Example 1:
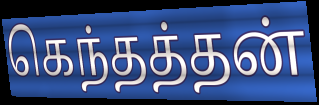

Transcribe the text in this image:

கெந்தத்தன்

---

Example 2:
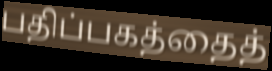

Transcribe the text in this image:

பதிப்பகத்தைத்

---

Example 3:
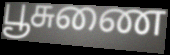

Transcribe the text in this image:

பூசுணை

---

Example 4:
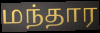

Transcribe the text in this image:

மந்தார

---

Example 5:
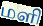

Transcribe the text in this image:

மளி